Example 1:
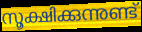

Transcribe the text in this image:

സൂക്ഷിക്കുന്നുണ്ട്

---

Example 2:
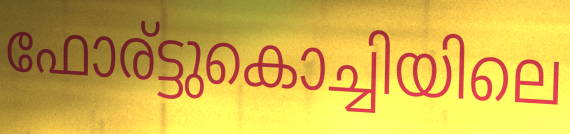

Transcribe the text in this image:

ഫോര്ട്ടുകൊച്ചിയിലെ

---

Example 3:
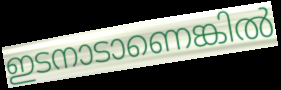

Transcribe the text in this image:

ഇടനാടാണെങ്കിൽ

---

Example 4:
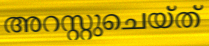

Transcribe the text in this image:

അറസ്റ്റുചെയ്ത്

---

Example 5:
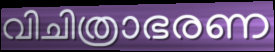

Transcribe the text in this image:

വിചിത്രാഭരണ